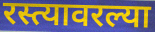
रस्त्यावरल्या